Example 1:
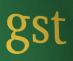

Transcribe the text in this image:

gst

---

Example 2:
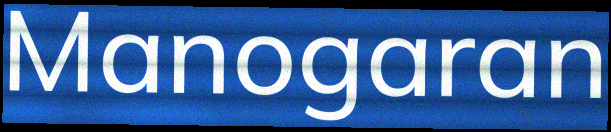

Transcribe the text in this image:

Manogaran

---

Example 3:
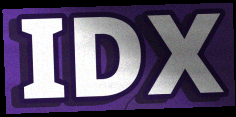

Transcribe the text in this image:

IDX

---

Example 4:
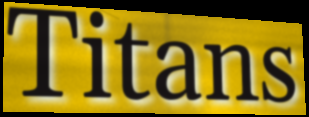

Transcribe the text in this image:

Titans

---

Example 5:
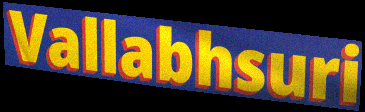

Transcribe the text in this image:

Vallabhsuri